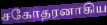
சகோதரனாகிய